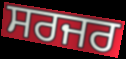
ਸਰਜਰ